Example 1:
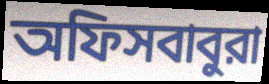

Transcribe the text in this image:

অফিসবাবুরা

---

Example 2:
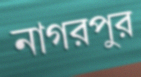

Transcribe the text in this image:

নাগরপুর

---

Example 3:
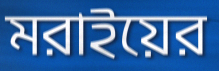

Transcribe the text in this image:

মরাইয়ের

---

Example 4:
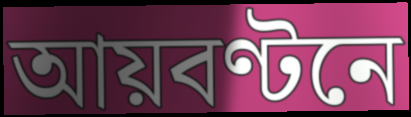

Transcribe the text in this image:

আয়বণ্টনে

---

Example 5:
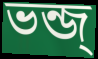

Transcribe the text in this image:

ভন্জ্